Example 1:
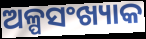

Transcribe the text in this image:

ଅଳ୍ପସଂଖ୍ୟାକ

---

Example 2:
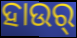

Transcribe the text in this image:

ହାଉର୍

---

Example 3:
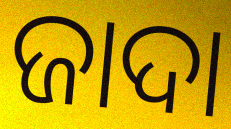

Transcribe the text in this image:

ଜାଦା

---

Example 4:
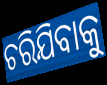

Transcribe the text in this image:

ଚରିଯିବାକୁ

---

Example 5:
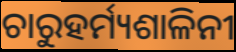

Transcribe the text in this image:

ଚାରୁହର୍ମ୍ୟଶାଳିନୀ